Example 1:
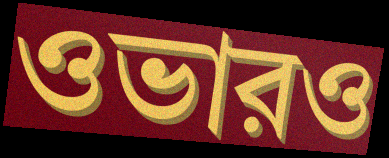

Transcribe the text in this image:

ওভারও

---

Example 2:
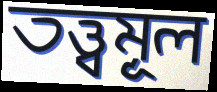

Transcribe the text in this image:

তত্ত্বমূল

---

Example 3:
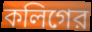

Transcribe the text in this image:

কলিগের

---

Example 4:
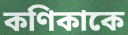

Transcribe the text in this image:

কণিকাকে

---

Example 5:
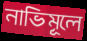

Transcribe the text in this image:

নাভিমূলে